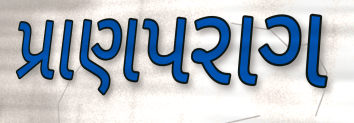
પ્રાણપરાગ